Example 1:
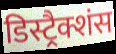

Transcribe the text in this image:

डिस्ट्रैक्शंस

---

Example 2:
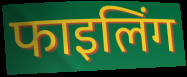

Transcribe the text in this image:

फाइलिंग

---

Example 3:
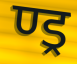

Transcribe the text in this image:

ण्ड्र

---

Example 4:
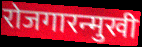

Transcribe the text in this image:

रोजगारन्मुखी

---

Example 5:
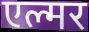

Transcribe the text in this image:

एल्मर